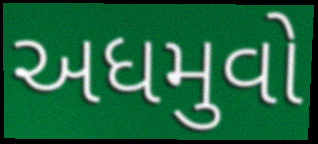
અધમુવો